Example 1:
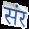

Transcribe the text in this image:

संर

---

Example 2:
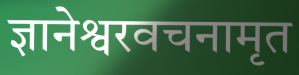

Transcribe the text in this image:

ज्ञानेश्वरवचनामृत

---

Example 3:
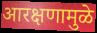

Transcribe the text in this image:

आरक्षणामुळे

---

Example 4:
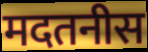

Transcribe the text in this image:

मदतनीस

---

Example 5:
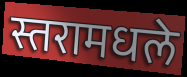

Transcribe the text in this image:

स्तरामधले